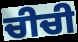
ਚੀਚੀ